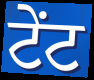
ਟੇਂਟ